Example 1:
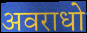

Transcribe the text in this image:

अवराधो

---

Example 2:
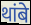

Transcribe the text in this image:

थांबे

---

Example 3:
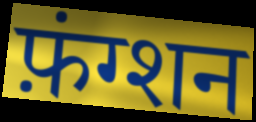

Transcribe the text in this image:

फ़ंग्शन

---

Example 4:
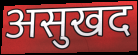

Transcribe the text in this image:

असुखद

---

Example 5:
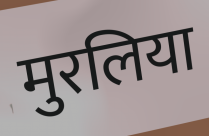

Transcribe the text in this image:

मुरलिया